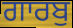
ਗਾਰਬੁ